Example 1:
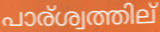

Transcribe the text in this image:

പാര്ശ്വത്തില്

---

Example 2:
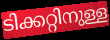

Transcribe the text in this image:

ടിക്കറ്റിനുള്ള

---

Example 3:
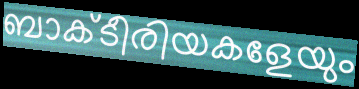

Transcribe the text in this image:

ബാക്ടീരിയകളേയും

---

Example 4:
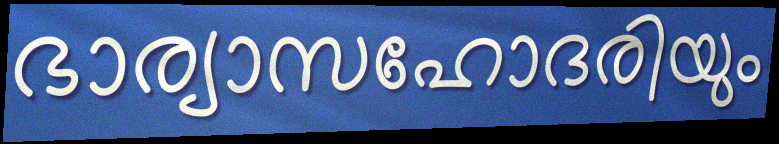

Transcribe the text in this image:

ഭാര്യാസഹോദരിയും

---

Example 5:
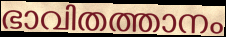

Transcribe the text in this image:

ഭാവിതത്താനം